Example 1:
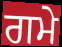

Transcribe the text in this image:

ਗਮੇ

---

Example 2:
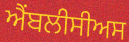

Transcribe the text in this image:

ਐਂਬਲੀਸੀਅਸ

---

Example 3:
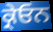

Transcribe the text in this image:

ਕ੍ਰੇਓਨ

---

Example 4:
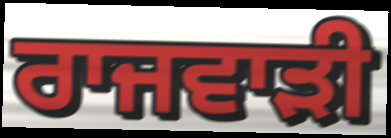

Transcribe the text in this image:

ਰਾਜਵਾੜੀ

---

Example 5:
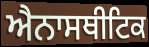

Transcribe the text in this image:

ਐਨਾਸਥੀਟਿਕ